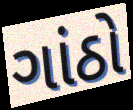
ગાંઠો